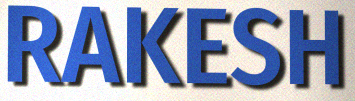
RAKESH